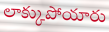
లాక్కుపోయారు